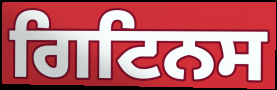
ਗਿਟਿਨਸ